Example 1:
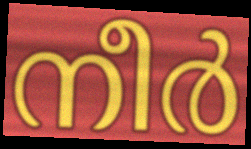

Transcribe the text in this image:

നീർ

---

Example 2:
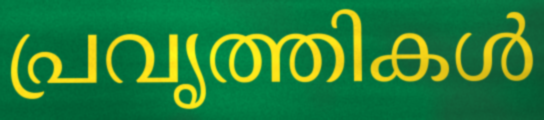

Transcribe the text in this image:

പ്രവൃത്തികൾ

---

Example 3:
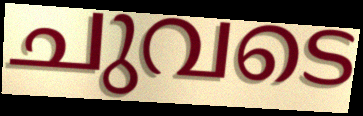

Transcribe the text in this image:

ചുവടെ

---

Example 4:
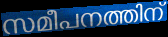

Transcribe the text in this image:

സമീപനത്തിന്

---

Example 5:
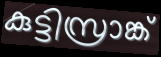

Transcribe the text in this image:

കുട്ടിസ്രാങ്ക്